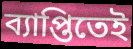
ব্যাপ্তিতেই